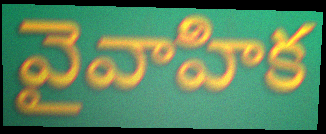
వైవాహిక